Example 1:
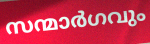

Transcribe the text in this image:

സന്മാർഗവും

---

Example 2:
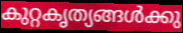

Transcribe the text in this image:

കുറ്റകൃത്യങ്ങൾക്കു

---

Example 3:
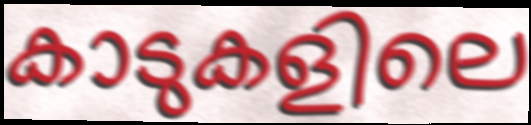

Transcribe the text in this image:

കാടുകളിലെ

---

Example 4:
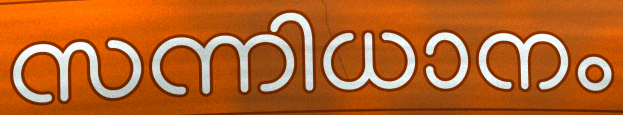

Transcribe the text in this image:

സന്നിധാനം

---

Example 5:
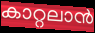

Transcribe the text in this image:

കാറ്റലാൻ